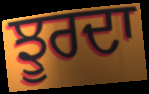
ਝੂਰਦਾ